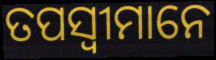
ତପସ୍ୱୀମାନେ